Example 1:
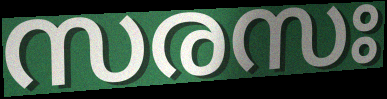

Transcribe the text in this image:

സരസഃ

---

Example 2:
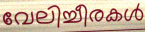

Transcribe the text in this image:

വേലിച്ചീരകൾ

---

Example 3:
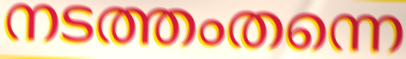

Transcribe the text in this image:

നടത്തംതന്നെ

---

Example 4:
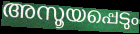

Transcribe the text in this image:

അസൂയപ്പെടും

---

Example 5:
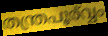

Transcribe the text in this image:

തന്ത്രപൂര്വ്വം